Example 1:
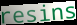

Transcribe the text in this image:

resins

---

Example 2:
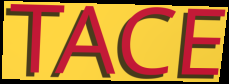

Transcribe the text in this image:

TACE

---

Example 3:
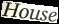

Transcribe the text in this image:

House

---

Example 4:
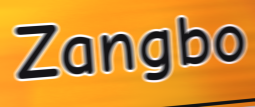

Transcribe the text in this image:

Zangbo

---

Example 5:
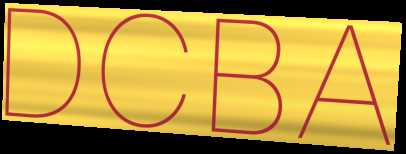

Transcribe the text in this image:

DCBA